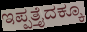
ಇಪ್ಪತ್ತೈದಕ್ಕೂ